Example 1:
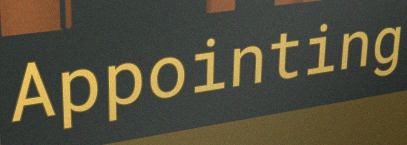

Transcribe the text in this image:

Appointing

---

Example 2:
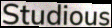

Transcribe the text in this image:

Studious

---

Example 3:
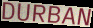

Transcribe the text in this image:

DURBAN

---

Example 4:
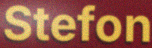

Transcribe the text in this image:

Stefon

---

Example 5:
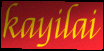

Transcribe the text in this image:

kayilai